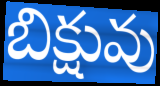
బిక్షువు